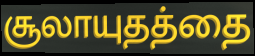
சூலாயுதத்தை